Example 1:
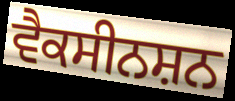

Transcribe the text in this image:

ਵੈਕਸੀਨਸ਼ਨ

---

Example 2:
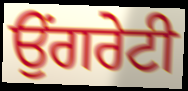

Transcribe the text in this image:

ਉਂਗਰੇਟੀ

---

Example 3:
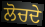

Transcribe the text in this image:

ਲੋਚਦੇ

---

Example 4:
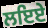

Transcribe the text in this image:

ਲਇਏ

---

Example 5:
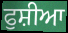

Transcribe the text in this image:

ਫੁਸ਼ੀਆ